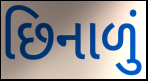
છિનાળું